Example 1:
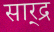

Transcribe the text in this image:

सार्द्र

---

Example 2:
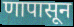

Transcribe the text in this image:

णापासून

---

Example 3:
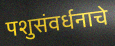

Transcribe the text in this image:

पशुसंवर्धनाचे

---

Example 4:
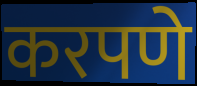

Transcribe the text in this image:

करपणे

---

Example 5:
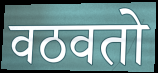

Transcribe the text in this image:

वठवतो